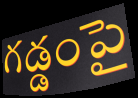
గడ్డంపై